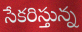
సేకరిస్తున్న